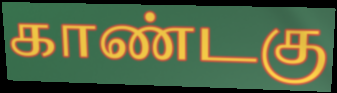
காண்டகு